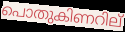
പൊതുകിണറില്